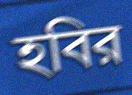
হবির